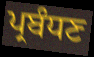
ਪ੍ਰਬੰਧਣ